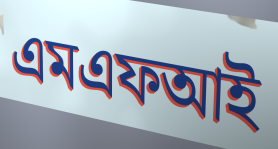
এমএফআই